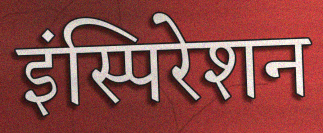
इंस्पिरेशन